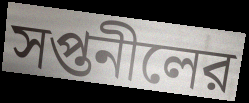
সপ্তনীলের